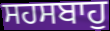
ਸਹਸਬਾਹੁ